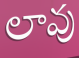
లావు